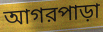
আগরপাড়া